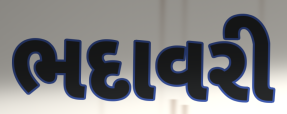
ભદાવરી